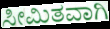
ಸೀಮಿತವಾಗಿ